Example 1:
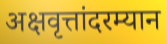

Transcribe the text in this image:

अक्षवृत्तांदरम्यान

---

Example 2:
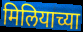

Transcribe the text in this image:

मिलियाच्या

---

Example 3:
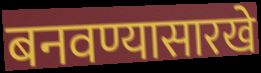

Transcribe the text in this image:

बनवण्यासारखे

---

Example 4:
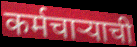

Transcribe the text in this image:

कर्मचार्‍याची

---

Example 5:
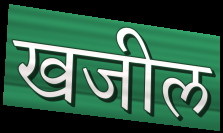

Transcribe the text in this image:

खजील